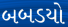
બબડયો